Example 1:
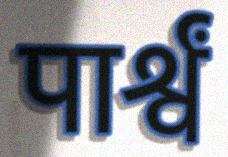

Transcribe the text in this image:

पार्श्वं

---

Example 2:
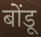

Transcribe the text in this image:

बोंडू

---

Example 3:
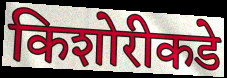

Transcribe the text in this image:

किशोरीकडे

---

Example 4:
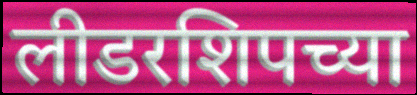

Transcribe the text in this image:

लीडरशिपच्या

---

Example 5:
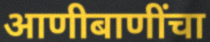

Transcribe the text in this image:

आणीबाणींचा